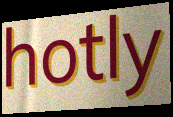
hotly